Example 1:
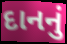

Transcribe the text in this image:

દાનનું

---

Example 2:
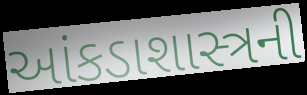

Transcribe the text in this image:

આંકડાશાસ્ત્રની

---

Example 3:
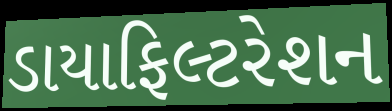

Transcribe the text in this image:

ડાયાફિલ્ટરેશન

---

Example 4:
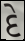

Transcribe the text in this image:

દે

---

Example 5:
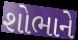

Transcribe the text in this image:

શોભાને